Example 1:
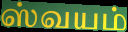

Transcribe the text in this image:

ஸ்வயம்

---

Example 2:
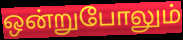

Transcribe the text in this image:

ஒன்றுபோலும்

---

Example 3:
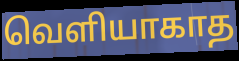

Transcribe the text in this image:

வெளியாகாத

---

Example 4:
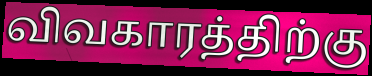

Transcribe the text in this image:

விவகாரத்திற்கு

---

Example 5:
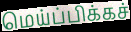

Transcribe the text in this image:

மெய்ப்பிக்கச்